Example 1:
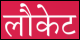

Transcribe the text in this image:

लौकेट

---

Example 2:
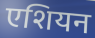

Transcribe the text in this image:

एशियन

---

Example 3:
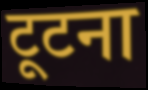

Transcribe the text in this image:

टूटना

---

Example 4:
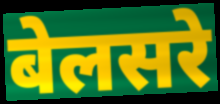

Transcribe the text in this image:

बेलसरे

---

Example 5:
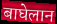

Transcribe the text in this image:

बाघेलान